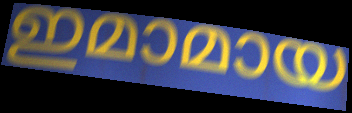
ഇമാമായ